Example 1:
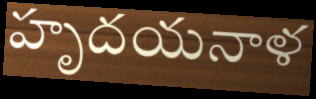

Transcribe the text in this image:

హృదయనాళ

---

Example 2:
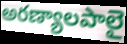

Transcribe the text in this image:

అరణ్యాలపాలై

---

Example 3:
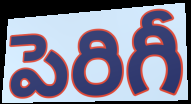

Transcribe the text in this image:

పెరిగీ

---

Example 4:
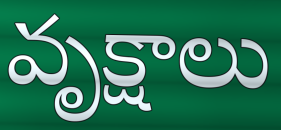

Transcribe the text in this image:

వృక్షాలు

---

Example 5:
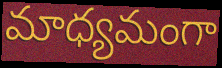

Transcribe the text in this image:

మాధ్యమంగా